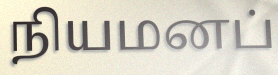
நியமனப்